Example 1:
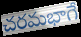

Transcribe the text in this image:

చరమభాగే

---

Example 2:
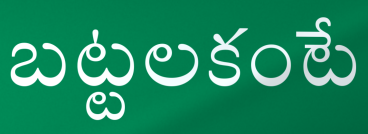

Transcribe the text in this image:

బట్టలకంటే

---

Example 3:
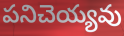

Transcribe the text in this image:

పనిచెయ్యవు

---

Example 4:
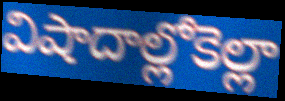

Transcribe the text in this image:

విషాదాల్లోకెల్లా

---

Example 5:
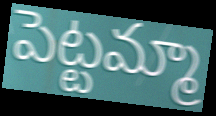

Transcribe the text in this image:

పెట్టమ్మా